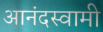
आनंदस्वामी